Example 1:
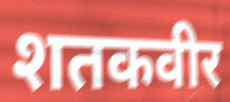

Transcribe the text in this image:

शतकवीर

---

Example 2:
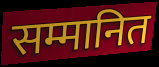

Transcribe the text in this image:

सम्मानित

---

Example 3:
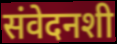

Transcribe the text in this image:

संवेदनशी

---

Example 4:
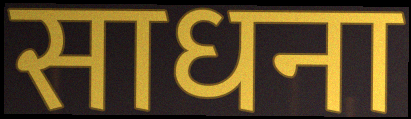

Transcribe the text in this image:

साधना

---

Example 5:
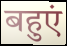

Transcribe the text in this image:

बहुएं